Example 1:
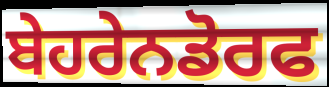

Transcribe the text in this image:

ਬੇਹਰੇਨਡੋਰਫ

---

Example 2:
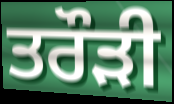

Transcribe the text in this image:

ਤਰੌੜੀ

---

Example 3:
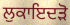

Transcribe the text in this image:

ਲੁਕਾਇਦੜੋ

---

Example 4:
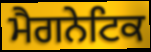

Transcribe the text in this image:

ਮੈਗਨੇਟਿਕ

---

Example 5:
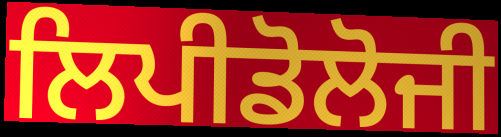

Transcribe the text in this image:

ਲਿਪੀਡੋਲੋਜੀ